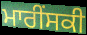
ਮਾਰੀੰਸਕੀ